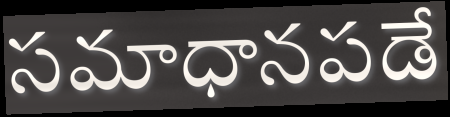
సమాధానపడే